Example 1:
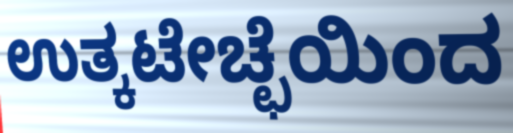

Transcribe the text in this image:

ಉತ್ಕಟೇಚ್ಛೆಯಿಂದ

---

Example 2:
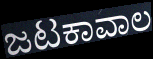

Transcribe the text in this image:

ಜಟಕಾವಾಲ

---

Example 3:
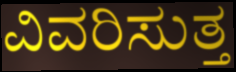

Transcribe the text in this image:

ವಿವರಿಸುತ್ತ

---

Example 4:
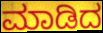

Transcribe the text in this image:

ಮಾಡಿದ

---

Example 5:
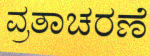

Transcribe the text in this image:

ವ್ರತಾಚರಣೆ